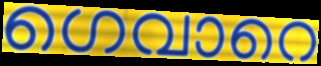
ഗെവാറെ